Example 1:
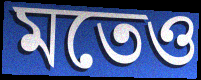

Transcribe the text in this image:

মতেও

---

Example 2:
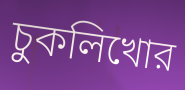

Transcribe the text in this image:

চুকলিখোর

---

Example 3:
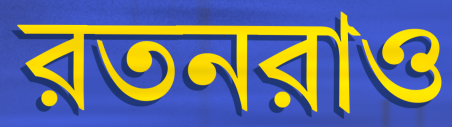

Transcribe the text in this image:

রতনরাও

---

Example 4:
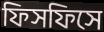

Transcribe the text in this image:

ফিসফিসে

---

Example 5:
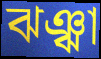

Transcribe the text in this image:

ঝঞ্ঝা